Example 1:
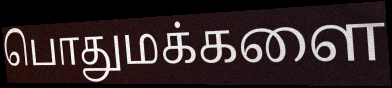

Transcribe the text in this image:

பொதுமக்களை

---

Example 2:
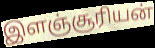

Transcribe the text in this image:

இளஞ்சூரியன்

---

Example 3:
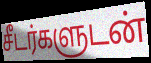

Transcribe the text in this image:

சீடர்களுடன்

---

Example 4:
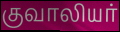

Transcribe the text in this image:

குவாலியர்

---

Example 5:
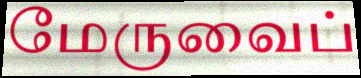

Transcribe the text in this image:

மேருவைப்